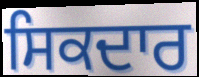
ਸਿਕਦਾਰ